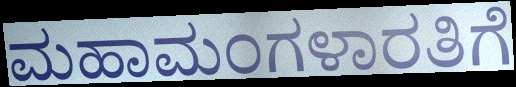
ಮಹಾಮಂಗಳಾರತಿಗೆ